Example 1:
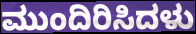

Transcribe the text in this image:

ಮುಂದಿರಿಸಿದಳು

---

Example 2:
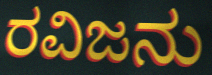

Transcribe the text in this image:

ರವಿಜನು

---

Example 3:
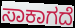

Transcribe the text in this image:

ಸಾಕಾಗದೆ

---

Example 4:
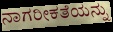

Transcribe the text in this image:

ನಾಗರೀಕತೆಯನ್ನು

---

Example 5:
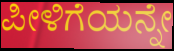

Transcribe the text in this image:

ಪೀಳಿಗೆಯನ್ನೇ